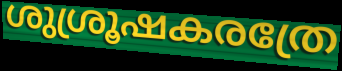
ശുശ്രൂഷകരത്രേ